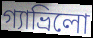
গ্যাভ্রিলো